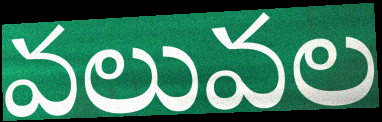
వలువల